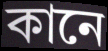
কানে